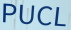
PUCL